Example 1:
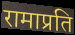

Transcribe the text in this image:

रामाप्रति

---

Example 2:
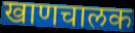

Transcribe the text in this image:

खाणचालक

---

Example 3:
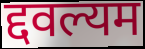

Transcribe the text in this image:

द्दवल्यम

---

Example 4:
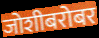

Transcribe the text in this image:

जोशीबरोबर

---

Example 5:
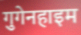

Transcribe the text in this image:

गुगेनहाइम